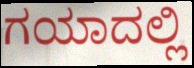
ಗಯಾದಲ್ಲಿ